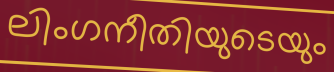
ലിംഗനീതിയുടെയും